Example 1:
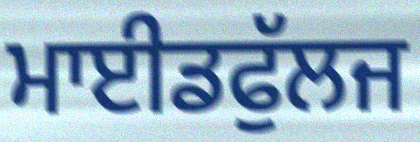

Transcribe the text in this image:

ਮਾਈਡਫੁੱਲਜ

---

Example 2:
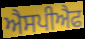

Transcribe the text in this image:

ਐਸਪੀਐਫ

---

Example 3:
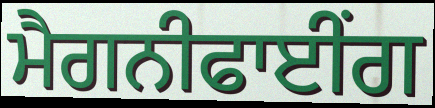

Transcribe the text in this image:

ਮੈਗਨੀਫਾਈਂਗ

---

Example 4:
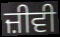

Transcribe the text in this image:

ਜ਼ੀਵੀ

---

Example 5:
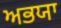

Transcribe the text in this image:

ਅਭਯਾ